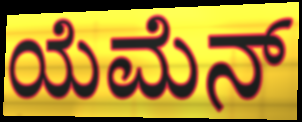
ಯೆಮೆನ್